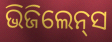
ଭିଜିଲେନ୍‌ସ